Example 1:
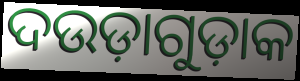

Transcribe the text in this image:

ଦଉଡ଼ାଗୁଡ଼ାକ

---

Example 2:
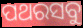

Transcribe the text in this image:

ପଥରସବୁ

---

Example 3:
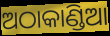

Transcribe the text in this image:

ଅଠାକାଣ୍ଡିଆ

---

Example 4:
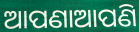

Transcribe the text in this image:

ଆପଣାଆପଣି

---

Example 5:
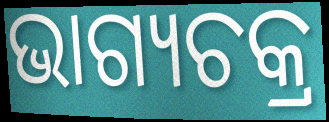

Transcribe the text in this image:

ଭାଗ୍ୟଚକ୍ର